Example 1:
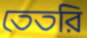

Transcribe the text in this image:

তেতরি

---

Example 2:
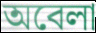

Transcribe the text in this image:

অবেলা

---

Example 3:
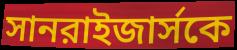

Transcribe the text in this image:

সানরাইজার্সকে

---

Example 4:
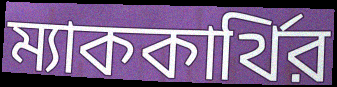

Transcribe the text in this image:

ম্যাককার্থির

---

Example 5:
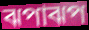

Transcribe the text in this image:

ঝপাঝপ